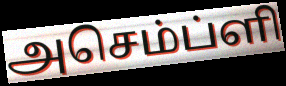
அசெம்ப்ளி